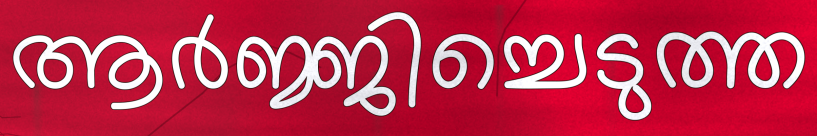
ആർജ്ജിച്ചെടുത്ത